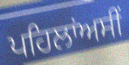
ਪਹਿਲਾਂਅਸੀਂ